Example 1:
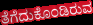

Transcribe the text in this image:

ತೆಗೆದುಕೊಂಡಿರುವ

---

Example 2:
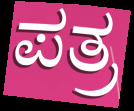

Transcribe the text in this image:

ಪತ್ರ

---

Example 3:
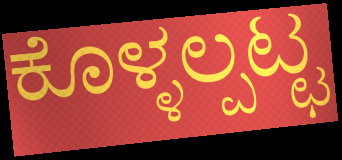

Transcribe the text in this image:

ಕೊಳ್ಳಲ್ಪಟ್ಟ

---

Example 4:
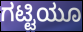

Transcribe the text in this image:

ಗಟ್ಟಿಯೂ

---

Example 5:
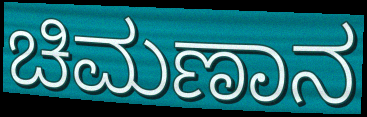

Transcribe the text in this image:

ಚಿಮಣಾನ